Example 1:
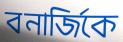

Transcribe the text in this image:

বনার্জিকে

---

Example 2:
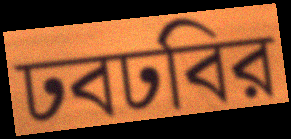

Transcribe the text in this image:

ঢবঢবির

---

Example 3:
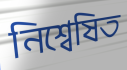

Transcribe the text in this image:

নিশ্বেষিত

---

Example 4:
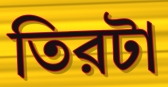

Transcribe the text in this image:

তিরটা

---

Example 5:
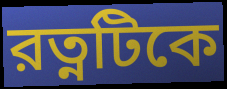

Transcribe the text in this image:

রত্নটিকে